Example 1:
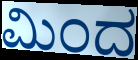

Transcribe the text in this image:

ಮಿಂದ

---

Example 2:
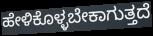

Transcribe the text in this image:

ಹೇಳಿಕೊಳ್ಳಬೇಕಾಗುತ್ತದೆ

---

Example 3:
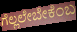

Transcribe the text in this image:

ಗೆಲ್ಲಲೇಬೇಕೆಂಬ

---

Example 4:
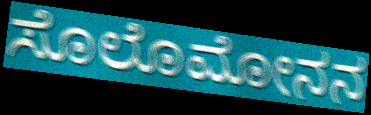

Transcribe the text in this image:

ಸೊಲೊಮೋನನ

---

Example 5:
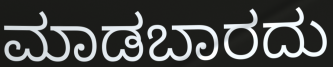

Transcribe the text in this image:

ಮಾಡಬಾರದು